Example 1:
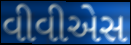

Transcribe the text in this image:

વીવીએસ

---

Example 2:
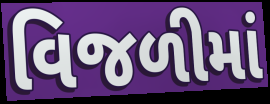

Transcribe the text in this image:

વિજળીમાં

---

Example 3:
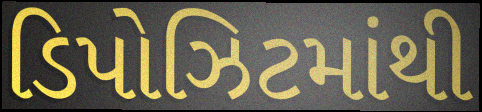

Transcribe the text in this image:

ડિપોઝિટમાંથી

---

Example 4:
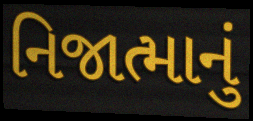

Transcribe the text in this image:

નિજાત્માનું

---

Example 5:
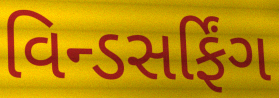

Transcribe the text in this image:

વિન્ડસર્ફિંગ